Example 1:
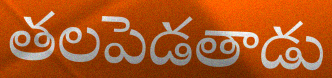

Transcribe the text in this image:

తలపెడతాడు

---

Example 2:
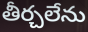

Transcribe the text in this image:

తీర్చలేను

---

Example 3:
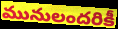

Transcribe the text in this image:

మునులందరికీ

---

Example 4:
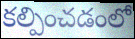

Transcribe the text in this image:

కల్పించడంలో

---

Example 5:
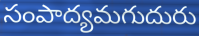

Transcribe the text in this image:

సంపాద్యమగుదురు